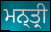
ਮਨ੍ਤ੍ਰੀ